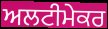
ਅਲਟੀਮੇਕਰ